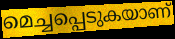
മെച്ചപ്പെടുകയാണ്